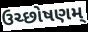
ઉચ્છોષણમ્